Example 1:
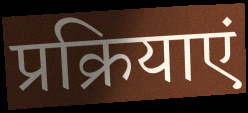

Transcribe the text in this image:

प्रक्रियाएं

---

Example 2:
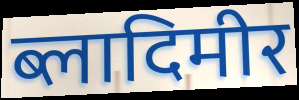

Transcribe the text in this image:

ब्लादिमीर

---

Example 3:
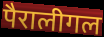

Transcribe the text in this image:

पैरालीगल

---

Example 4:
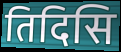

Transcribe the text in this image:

तिदिसि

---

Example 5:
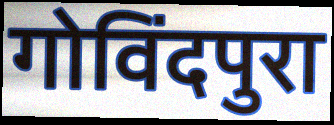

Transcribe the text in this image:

गोविंदपुरा